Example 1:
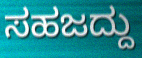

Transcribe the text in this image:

ಸಹಜದ್ದು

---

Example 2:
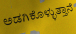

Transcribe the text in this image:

ಅಡಗಿಕೊಳ್ಳುತ್ತಾನೆ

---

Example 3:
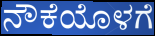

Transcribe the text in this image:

ನೌಕೆಯೊಳಗೆ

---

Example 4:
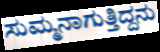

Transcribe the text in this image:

ಸುಮ್ಮನಾಗುತ್ತಿದ್ದನು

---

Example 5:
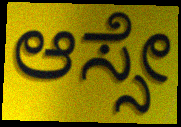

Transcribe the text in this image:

ಆಸ್ಸೇ